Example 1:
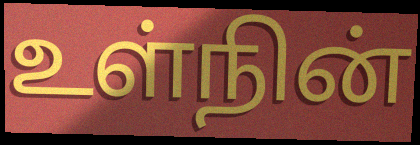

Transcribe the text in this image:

உள்நின்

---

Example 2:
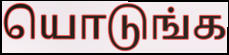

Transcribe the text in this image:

யொடுங்க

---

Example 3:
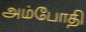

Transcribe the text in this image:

அம்போதி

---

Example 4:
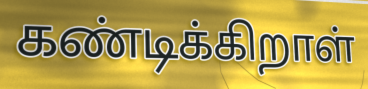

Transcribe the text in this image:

கண்டிக்கிறாள்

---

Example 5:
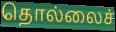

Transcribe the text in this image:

தொல்லைச்